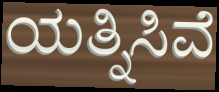
ಯತ್ನಿಸಿವೆ